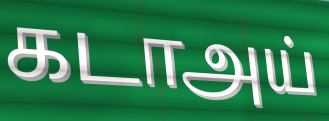
கடாஅய்